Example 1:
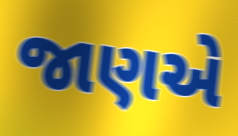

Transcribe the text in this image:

જાણએ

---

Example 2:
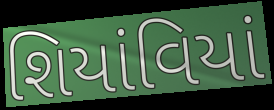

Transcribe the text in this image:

શિયાંવિયાં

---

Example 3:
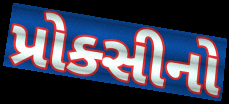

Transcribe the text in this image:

પ્રોક્સીનો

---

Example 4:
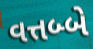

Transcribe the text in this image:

વત્તબ્બે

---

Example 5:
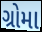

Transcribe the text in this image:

ગ્રોમા